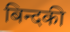
बिन्दकी